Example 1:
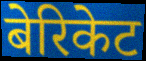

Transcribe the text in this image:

बेरिकेट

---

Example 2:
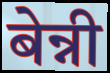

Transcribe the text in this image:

बेन्नी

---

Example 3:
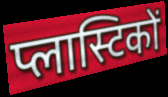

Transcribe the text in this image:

प्लास्टिकों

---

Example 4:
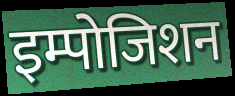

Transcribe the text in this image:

इम्पोजिशन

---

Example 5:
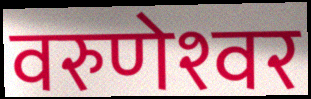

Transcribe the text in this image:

वरुणेश्वर